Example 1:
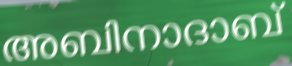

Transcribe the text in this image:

അബിനാദാബ്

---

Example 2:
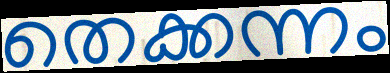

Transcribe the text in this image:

തെക്കന്നം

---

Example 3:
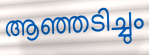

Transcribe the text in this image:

ആഞ്ഞടിച്ചും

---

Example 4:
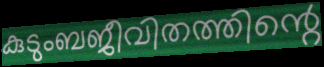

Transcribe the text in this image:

കുടുംബജീവിതത്തിന്റെ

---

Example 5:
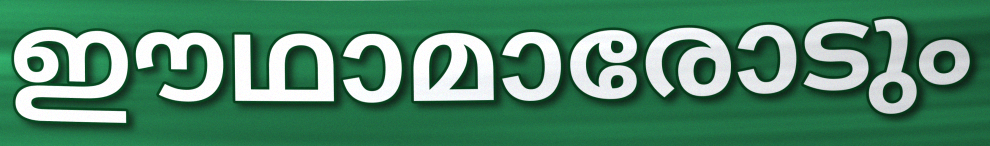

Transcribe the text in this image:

ഈഥാമാരോടും